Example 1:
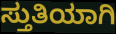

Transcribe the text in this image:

ಸ್ತುತಿಯಾಗಿ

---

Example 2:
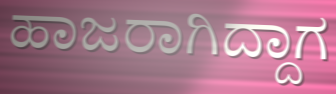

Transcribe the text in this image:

ಹಾಜರಾಗಿದ್ದಾಗ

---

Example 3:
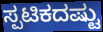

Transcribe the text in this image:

ಸ್ಪಟಿಕದಷ್ಟು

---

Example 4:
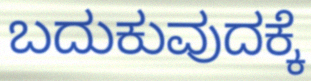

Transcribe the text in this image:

ಬದುಕುವುದಕ್ಕೆ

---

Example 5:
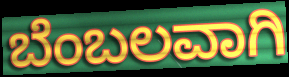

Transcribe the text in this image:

ಬೆಂಬಲವಾಗಿ